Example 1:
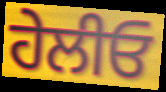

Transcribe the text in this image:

ਹੇਲੀਓ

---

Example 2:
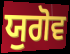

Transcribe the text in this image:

ਯੁਗੋਵ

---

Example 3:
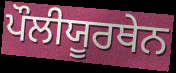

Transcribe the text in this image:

ਪੌਲੀਯੂਰਥੇਨ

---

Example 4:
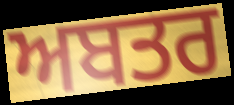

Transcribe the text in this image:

ਅਬਤਰ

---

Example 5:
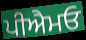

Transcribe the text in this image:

ਪੀਐਮਓ